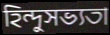
হিন্দুসভ্যতা